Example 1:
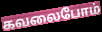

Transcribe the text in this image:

கவலைபோம்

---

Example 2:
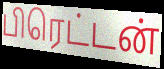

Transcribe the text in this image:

பிரெட்டன்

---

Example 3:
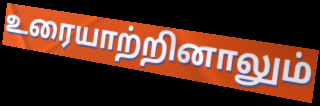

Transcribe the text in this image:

உரையாற்றினாலும்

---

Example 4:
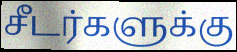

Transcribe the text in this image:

சீடர்களுக்கு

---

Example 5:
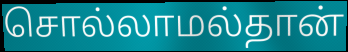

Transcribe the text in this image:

சொல்லாமல்தான்